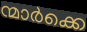
ന്മാർക്കെ